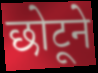
छोटूने